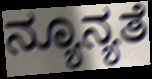
ನ್ಯೂನ್ಯತೆ